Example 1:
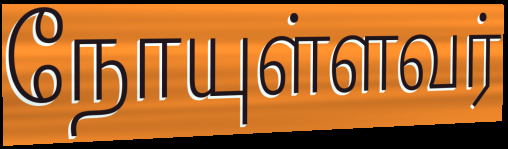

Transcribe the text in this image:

நோயுள்ளவர்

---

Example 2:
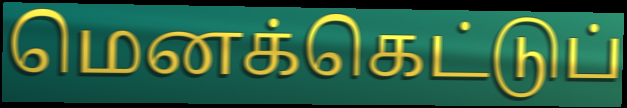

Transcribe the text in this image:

மெனக்கெட்டுப்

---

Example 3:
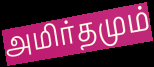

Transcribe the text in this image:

அமிர்தமும்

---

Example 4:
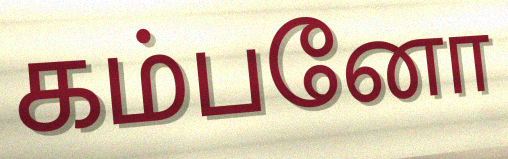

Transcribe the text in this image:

கம்பனோ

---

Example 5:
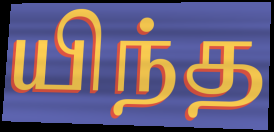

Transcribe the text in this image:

யிந்த